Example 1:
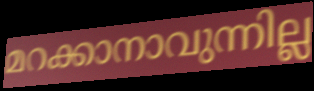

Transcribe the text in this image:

മറക്കാനാവുന്നില്ല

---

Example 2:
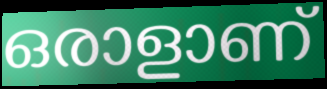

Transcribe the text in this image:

ഒരാളാണ്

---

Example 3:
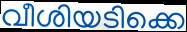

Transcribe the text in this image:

വീശിയടിക്കെ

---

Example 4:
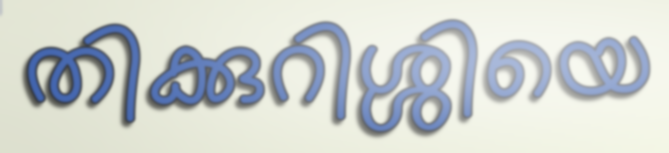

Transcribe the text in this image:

തിക്കുറിശ്ശിയെ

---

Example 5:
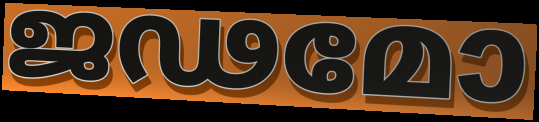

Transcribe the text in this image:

ജഢമോ